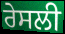
ਰੇਸਲੀ